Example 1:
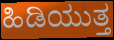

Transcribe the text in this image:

ಹಿಡಿಯುತ್ತ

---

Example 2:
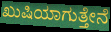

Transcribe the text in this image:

ಖುಷಿಯಾಗುತ್ತೇನೆ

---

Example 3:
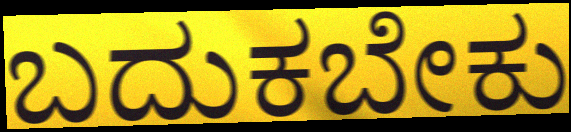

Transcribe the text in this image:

ಬದುಕಬೇಕು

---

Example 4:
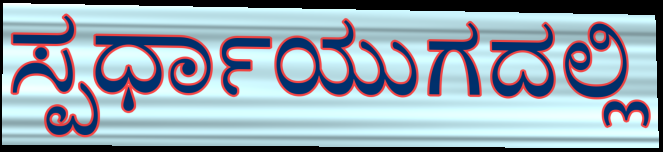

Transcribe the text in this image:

ಸ್ಪರ್ಧಾಯುಗದಲ್ಲಿ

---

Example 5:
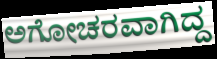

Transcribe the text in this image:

ಅಗೋಚರವಾಗಿದ್ದ